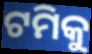
ଟମିକୁ